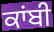
ਕਾਂਬੀ